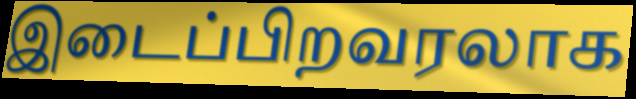
இடைப்பிறவரலாக